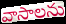
వాసాలను